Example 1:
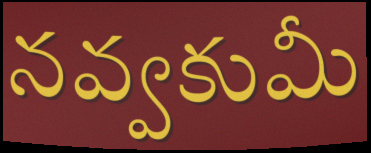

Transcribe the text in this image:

నవ్వకుమీ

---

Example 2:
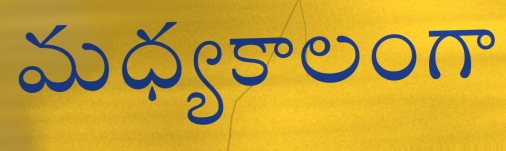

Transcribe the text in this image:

మధ్యకాలంగా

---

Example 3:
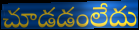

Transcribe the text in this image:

చూడడంలేదు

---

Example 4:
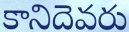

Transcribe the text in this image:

కానిదెవరు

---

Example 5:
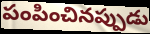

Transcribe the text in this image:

పంపించినప్పుడు